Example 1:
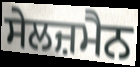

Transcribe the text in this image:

ਸੇਲਜ਼ਮੈਨ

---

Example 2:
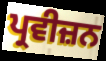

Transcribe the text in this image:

ਪ੍ਰਵੀਜ਼ਨ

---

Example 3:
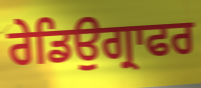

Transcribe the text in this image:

ਰੇਡਿਉਗ੍ਰਾਫਰ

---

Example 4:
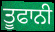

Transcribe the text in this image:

ਤੂਫਾਨੀ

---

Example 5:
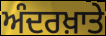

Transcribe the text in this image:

ਅੰਦਰਖ਼ਾਤੇ